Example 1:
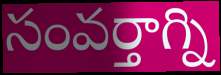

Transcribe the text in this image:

సంవర్తాగ్ని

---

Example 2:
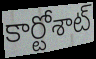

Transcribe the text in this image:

కార్టోశాట్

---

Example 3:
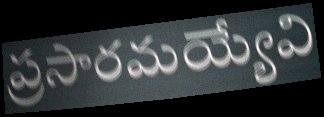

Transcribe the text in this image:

ప్రసారమయ్యేవి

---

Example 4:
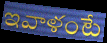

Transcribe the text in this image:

ఇవాళంటే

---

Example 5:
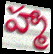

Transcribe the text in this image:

హ్మా